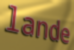
lande